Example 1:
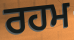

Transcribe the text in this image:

ਰਹਮ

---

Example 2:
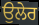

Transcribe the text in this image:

ਉਲੇਰ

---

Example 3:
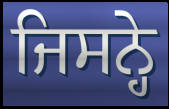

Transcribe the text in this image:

ਜਿਸਨ੍ਹੇ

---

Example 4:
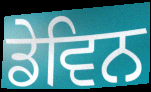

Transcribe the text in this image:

ਡੇਵਿਨ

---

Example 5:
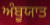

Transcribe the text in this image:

ਅੰਬੂਯਾਤ